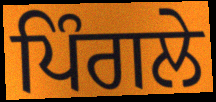
ਪਿੰਗਲੇ